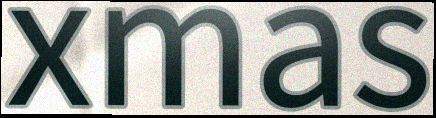
xmas